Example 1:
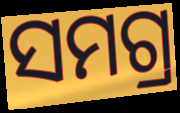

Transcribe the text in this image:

ସମଗ୍ର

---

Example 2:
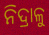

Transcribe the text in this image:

ନିଦ୍ରାଳୁ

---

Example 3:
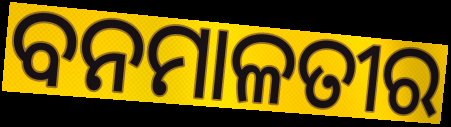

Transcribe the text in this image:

ବନମାଳତୀର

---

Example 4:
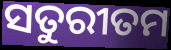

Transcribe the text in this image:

ସତୁରୀତମ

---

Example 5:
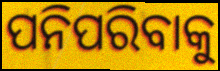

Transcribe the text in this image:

ପନିପରିବାକୁ